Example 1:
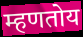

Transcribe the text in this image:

म्हणतोय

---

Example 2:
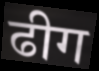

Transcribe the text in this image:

ढीग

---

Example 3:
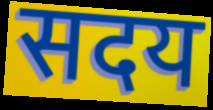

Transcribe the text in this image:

सदय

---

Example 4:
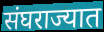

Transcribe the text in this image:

संघराज्यात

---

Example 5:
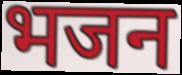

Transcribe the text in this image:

भजन